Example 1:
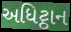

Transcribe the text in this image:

અધિટ્ઠાન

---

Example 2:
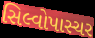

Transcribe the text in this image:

સિલ્વોપાસ્ચર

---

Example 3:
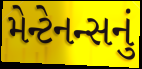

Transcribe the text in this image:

મેન્ટેનન્સનું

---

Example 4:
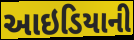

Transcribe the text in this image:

આઇડિયાની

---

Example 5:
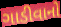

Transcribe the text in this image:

ગાડીવાનો